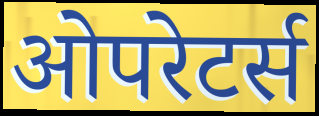
ओपरेटर्स